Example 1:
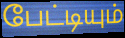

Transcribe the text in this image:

பேட்டியும்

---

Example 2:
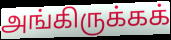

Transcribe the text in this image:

அங்கிருக்கக்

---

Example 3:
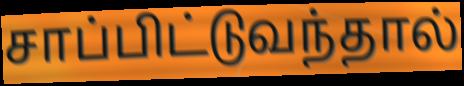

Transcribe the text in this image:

சாப்பிட்டுவந்தால்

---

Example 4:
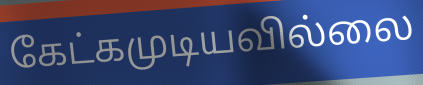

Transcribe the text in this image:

கேட்கமுடியவில்லை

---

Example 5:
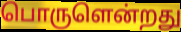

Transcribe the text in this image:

பொருளென்றது